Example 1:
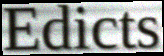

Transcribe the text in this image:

Edicts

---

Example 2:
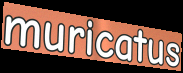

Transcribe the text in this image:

muricatus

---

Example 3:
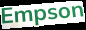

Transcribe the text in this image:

Empson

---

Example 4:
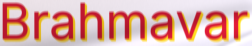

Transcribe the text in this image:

Brahmavar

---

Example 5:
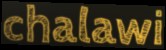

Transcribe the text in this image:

chalawi